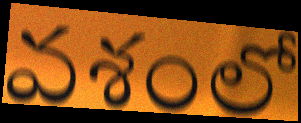
వశంలో